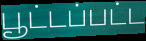
பூட்டப்பட்ட